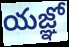
యజ్ఞో